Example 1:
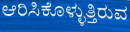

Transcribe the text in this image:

ಆರಿಸಿಕೊಳ್ಳುತ್ತಿರುವ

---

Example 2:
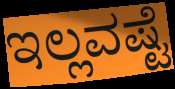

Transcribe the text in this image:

ಇಲ್ಲವಷ್ಟೆ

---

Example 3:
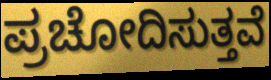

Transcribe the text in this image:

ಪ್ರಚೋದಿಸುತ್ತವೆ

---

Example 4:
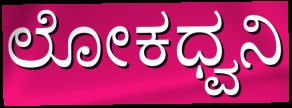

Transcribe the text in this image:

ಲೋಕಧ್ವನಿ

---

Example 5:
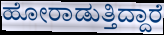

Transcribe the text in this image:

ಹೋರಾಡುತ್ತಿದ್ದಾರೆ